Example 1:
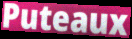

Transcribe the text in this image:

Puteaux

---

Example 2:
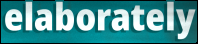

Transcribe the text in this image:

elaborately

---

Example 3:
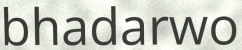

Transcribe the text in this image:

bhadarwo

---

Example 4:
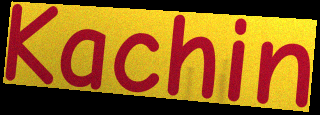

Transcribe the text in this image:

Kachin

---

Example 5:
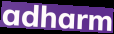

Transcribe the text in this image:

adharm